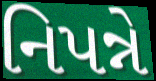
નિપન્ને